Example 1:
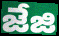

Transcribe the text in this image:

జేజి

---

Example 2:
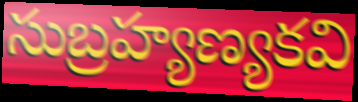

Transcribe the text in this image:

సుబ్రహ్యణ్యకవి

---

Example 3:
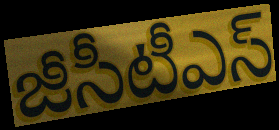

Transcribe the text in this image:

జీసీటీఎస్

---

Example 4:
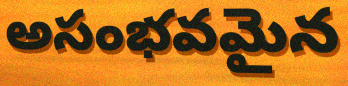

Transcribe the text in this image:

అసంభవమైన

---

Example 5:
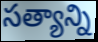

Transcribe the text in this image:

సత్యాన్ని